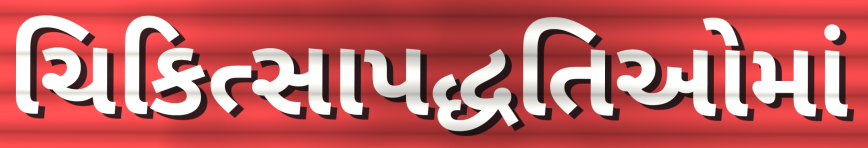
ચિકિત્સાપદ્ધતિઓમાં